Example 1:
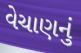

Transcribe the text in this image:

વેચાણનું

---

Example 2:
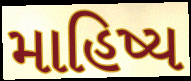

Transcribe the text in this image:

માહિષ્ય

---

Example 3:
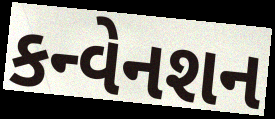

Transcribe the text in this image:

કન્વેનશન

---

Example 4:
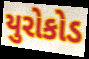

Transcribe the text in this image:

યુરોકોડ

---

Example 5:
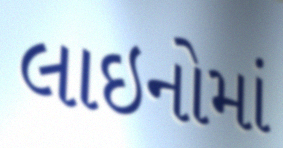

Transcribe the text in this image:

લાઇનોમાં